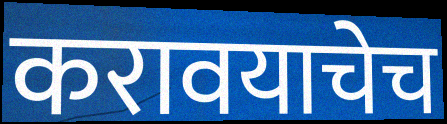
करावयाचेच